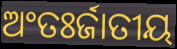
ଅଂତଃର୍ଜାତୀୟ